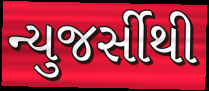
ન્યુજર્સીથી